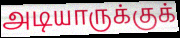
அடியாருக்குக்